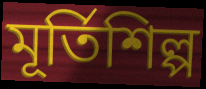
মূর্তিশিল্প